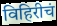
विहिरीचं